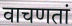
वाचणतां